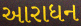
આરાધન